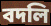
বদলি